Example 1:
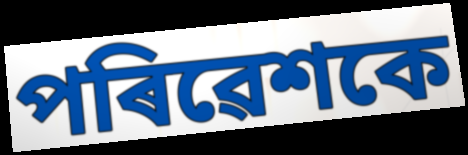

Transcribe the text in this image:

পৰিৱেশকে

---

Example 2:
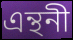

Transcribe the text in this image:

এন্থনী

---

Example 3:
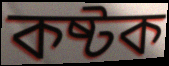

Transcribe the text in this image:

কষ্টক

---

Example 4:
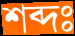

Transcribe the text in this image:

শব্দঃ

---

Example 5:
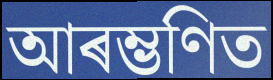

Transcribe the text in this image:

আৰম্ভণিত